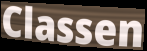
Classen